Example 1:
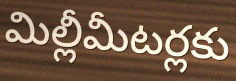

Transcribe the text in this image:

మిల్లీమీటర్లకు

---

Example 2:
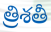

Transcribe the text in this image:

త్రిశతీ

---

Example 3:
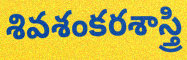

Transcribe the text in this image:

శివశంకరశాస్త్రి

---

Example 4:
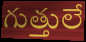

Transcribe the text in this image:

గుత్తులే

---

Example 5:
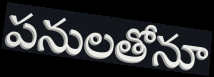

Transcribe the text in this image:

పనులతోనూ